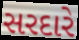
સરદારે